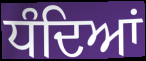
ਧੰਦਿਆਂ